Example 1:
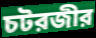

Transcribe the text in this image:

চটরজীর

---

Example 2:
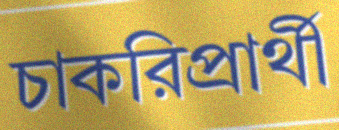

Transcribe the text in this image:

চাকরিপ্রার্থী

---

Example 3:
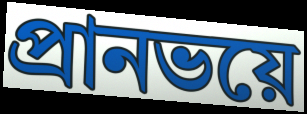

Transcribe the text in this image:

প্রানভয়ে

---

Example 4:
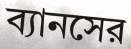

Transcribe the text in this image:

ব্যানসের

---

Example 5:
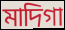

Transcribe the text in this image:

মাদিগা